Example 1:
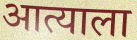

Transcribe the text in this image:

आत्याला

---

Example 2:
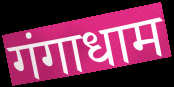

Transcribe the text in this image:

गंगाधाम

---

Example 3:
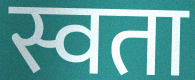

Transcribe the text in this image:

स्वता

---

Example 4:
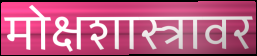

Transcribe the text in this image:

मोक्षशास्त्रावर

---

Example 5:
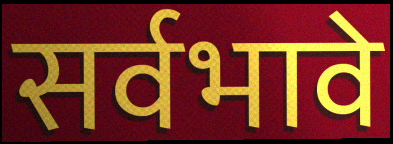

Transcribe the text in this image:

सर्वभावे